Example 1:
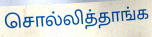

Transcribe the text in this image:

சொல்லித்தாங்க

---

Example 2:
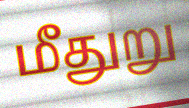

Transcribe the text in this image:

மீதுறு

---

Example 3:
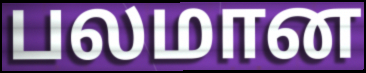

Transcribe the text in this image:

பலமான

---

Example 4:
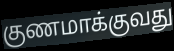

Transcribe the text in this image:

குணமாக்குவது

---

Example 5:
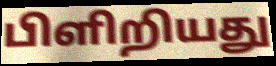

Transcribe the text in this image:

பிளிறியது